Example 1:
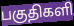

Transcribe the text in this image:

பகுதிகளி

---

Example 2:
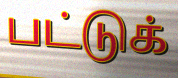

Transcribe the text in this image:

பட்டுக்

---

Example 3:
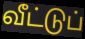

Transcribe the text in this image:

வீட்டுப்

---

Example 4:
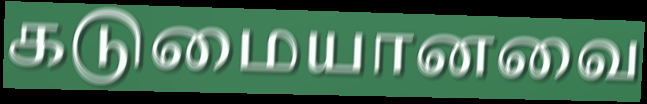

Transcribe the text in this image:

கடுமையானவை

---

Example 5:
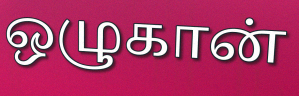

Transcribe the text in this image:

ஒழுகான்